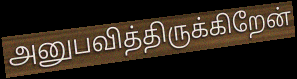
அனுபவித்திருக்கிறேன்